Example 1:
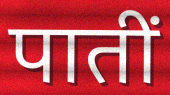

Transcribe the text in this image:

पातीं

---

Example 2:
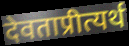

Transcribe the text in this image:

देवताप्रीत्यर्थ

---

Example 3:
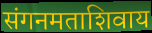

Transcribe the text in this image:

संगनमताशिवाय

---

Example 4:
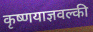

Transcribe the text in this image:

कृष्णयाज्ञवल्की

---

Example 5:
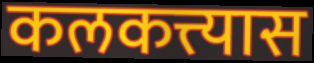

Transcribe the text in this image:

कलकत्त्यास